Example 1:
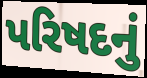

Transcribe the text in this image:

પરિષદનું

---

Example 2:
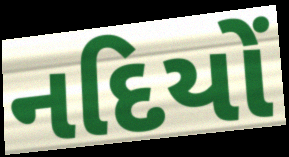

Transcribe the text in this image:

નદિયોં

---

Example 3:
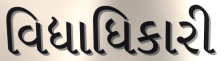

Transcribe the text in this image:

વિદ્યાધિકારી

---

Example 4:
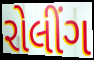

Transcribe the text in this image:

રોલીંગ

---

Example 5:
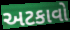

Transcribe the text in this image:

અટકાવો